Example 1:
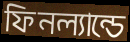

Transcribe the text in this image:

ফিনল্যান্ডে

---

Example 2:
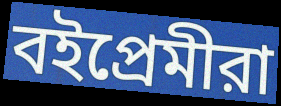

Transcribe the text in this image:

বইপ্রেমীরা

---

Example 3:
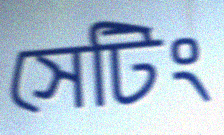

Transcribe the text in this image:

সেটিং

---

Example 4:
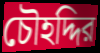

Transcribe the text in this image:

চৌহদ্দির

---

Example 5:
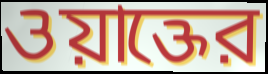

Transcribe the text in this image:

ওয়াক্তের